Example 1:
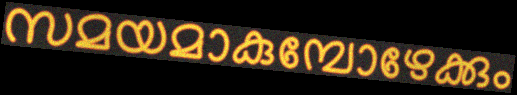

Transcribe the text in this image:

സമയമാകുമ്പോഴേക്കും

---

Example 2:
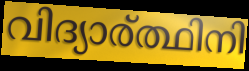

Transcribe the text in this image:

വിദ്യാര്ത്ഥിനി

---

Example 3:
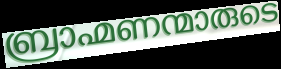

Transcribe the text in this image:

ബ്രാഹ്മണന്മാരുടെ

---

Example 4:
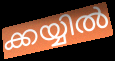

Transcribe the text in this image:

ക്കയ്യിൽ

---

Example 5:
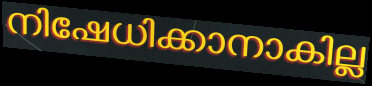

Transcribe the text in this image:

നിഷേധിക്കാനാകില്ല